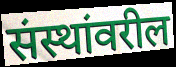
संस्थांवरील